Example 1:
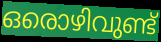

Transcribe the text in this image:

ഒരൊഴിവുണ്ട്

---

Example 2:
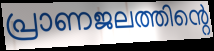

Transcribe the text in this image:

പ്രാണജലത്തിന്റെ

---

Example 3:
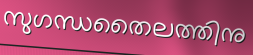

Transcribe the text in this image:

സുഗന്ധതൈലത്തിനു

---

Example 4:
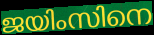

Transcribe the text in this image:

ജയിംസിനെ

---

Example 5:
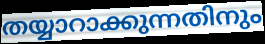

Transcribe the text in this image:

തയ്യാറാക്കുന്നതിനും